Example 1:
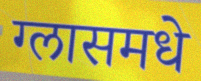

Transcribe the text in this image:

ग्लासमधे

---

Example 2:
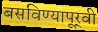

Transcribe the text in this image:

बसविण्यापूर्वी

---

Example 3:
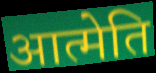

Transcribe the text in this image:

आत्मेति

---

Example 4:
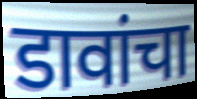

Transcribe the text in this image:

डावांचा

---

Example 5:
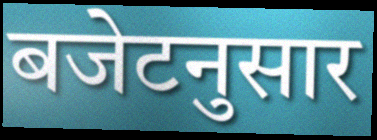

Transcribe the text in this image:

बजेटनुसार